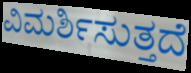
ವಿಮರ್ಶಿಸುತ್ತದೆ